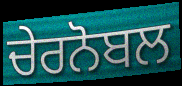
ਚੇਰਨੋਬਲ